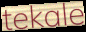
tekale